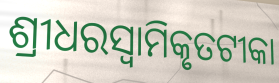
ଶ୍ରୀଧରସ୍ଵାମିକୃତଟୀକା